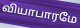
வியாபாரமே